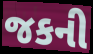
જકની